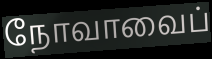
நோவாவைப்